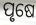
ପୃଷେ